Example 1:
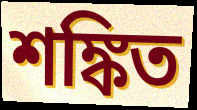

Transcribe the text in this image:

শঙ্কিত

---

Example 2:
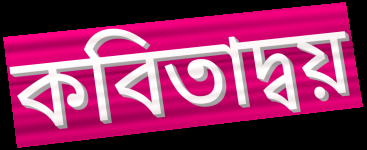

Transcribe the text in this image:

কবিতাদ্বয়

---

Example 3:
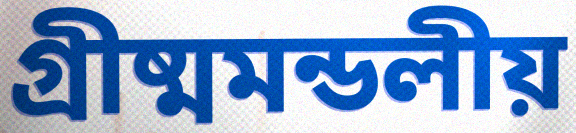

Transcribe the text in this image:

গ্রীষ্মমন্ডলীয়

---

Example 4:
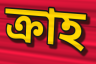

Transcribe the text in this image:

ক্রাহ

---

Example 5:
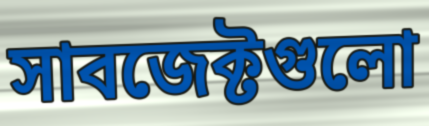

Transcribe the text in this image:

সাবজেক্টগুলো